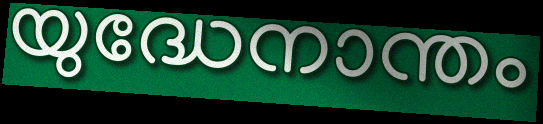
യുദ്ധേനാന്തം